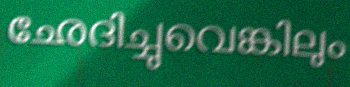
ഛേദിച്ചുവെങ്കിലും